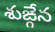
శుఙ్గేన